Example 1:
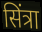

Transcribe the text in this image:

सिंत्रा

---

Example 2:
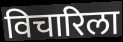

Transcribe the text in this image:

विचारिला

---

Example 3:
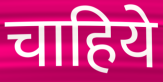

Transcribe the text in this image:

चाहिये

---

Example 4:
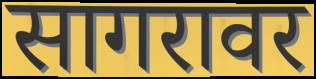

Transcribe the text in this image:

सागरावर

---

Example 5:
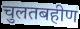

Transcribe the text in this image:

चुलतबहीण